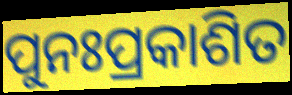
ପୁନଃପ୍ରକାଶିତ